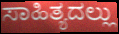
ಸಾಹಿತ್ಯದಲ್ಲು